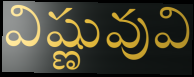
విష్ణువువి